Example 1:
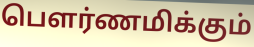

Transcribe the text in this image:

பௌர்ணமிக்கும்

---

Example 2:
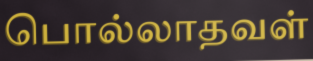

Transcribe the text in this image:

பொல்லாதவள்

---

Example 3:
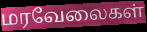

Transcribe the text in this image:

மரவேலைகள்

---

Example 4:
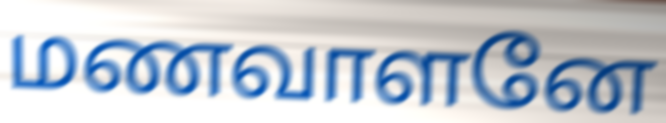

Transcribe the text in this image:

மணவாளனே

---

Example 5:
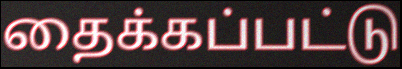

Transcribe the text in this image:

தைக்கப்பட்டு